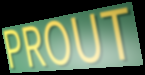
PROUT